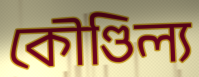
কৌণ্ডিল্য